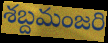
శబ్దమంజరి